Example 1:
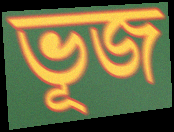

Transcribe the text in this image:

ভূজ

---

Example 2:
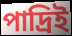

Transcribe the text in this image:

পাদ্রিই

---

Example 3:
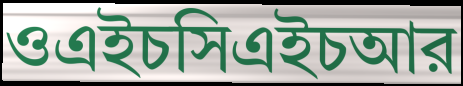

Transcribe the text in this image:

ওএইচসিএইচআর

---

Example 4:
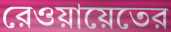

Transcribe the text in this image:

রেওয়ায়েতের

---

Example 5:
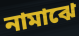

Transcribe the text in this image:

নামাঝে